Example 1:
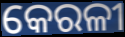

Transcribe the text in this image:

କେରଳୀ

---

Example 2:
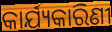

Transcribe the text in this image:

କାର୍ଯ୍ୟକାରିଣୀ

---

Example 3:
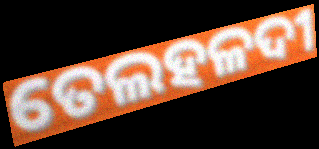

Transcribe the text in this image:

ତେଲହଳଦୀ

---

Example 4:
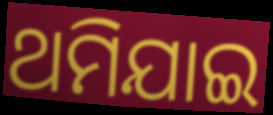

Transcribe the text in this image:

ଥମିଯାଇ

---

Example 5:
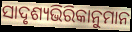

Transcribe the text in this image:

ସାଦୃଶ୍ଯଭିରିକାନୁମାନ